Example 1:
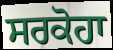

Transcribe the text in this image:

ਸਰਕੋਹਾ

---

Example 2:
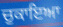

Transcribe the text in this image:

ਚੁਕਾਇਆ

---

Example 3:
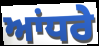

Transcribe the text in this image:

ਆਂਧਰੇ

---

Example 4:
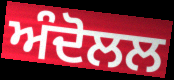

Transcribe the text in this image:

ਅੰਦੋਲਲ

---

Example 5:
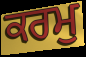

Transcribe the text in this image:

ਕਰਮੁ